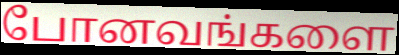
போனவங்களை